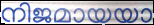
നിജമായയാ